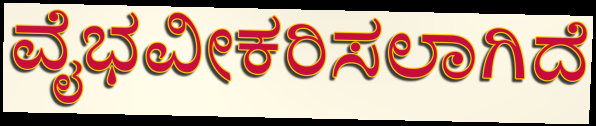
ವೈಭವೀಕರಿಸಲಾಗಿದೆ